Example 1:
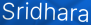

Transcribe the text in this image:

Sridhara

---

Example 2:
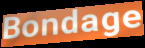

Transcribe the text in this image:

Bondage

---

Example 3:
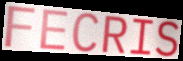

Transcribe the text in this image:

FECRIS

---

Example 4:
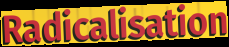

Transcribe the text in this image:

Radicalisation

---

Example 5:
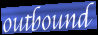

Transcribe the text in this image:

outbound